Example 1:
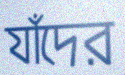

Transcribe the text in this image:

যাঁদের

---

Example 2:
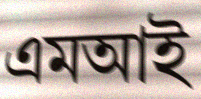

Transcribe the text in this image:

এমআই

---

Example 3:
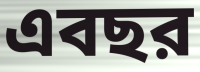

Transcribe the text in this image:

এবছর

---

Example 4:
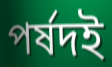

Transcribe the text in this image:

পর্ষদই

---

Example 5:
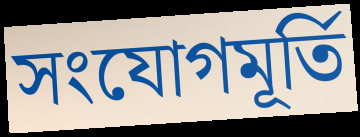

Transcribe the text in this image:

সংযোগমূর্তি